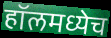
हॉलमध्येच